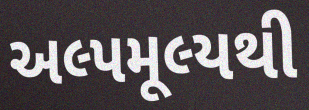
અલ્પમૂલ્યથી